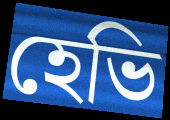
হেভি